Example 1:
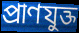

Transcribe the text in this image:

প্রাণযুক্ত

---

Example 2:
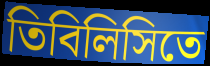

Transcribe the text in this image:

তিবিলিসিতে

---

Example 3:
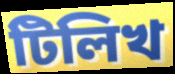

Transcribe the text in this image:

টিলিখ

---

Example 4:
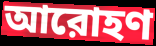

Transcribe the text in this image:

আরোহণ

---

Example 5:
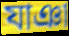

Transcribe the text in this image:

যাঞা